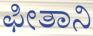
ಫೀತಾನಿ